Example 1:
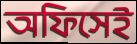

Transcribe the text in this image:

অফিসেই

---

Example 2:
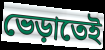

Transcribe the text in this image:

ভেড়াতেই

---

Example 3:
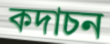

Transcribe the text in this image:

কদাচন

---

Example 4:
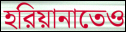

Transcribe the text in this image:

হরিয়ানাতেও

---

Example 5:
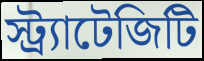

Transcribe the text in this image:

স্ট্র্যাটেজিটি